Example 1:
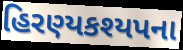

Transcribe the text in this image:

હિરણ્યકશ્યપના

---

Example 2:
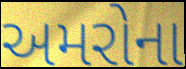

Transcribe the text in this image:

અમરોના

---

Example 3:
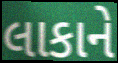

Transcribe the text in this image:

લાકાને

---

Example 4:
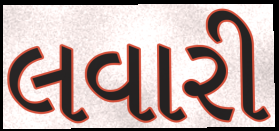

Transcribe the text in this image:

લવારી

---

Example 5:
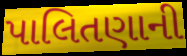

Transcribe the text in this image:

પાલિતણાની